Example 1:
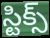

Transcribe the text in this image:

స్టిక్స్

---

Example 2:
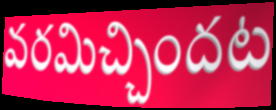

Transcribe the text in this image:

వరమిచ్చిందట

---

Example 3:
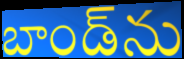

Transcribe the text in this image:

బాండ్‌ను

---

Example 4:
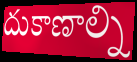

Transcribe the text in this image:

దుకాణాల్ని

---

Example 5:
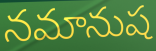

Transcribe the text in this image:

నమానుష